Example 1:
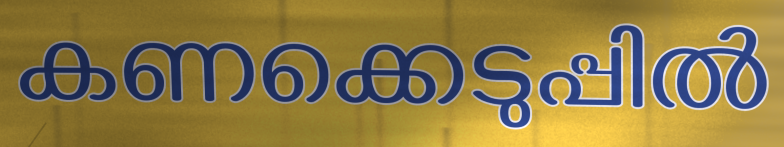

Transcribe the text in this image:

കണക്കെടുപ്പിൽ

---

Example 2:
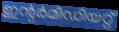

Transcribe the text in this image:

ഇന്റർമീഡിയറ്റ്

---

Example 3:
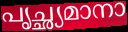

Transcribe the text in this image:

പൃച്ഛ്യമാനാ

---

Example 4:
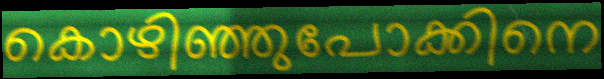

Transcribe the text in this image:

കൊഴിഞ്ഞുപോക്കിനെ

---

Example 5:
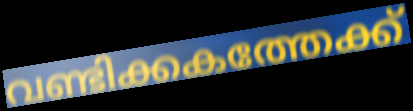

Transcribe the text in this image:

വണ്ടിക്കകത്തേക്ക്